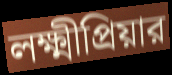
লক্ষ্মীপ্রিয়ার